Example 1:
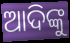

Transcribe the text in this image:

ଆଦିଙ୍କୁ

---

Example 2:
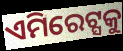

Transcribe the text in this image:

ଏମିରେଟ୍ସକୁ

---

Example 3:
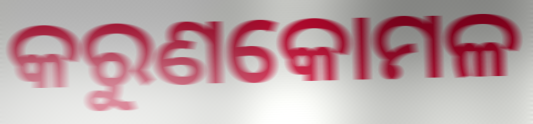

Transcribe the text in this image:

କରୁଣକୋମଳ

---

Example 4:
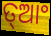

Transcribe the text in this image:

ତ୍ଆଂ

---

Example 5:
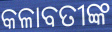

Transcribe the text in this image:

କଳାବତୀଙ୍କ